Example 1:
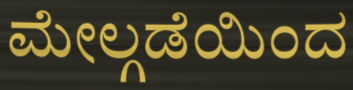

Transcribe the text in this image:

ಮೇಲ್ಗಡೆಯಿಂದ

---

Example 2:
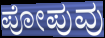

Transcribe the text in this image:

ಪೋಪುವು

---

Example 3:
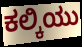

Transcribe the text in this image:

ಕಲ್ಕಿಯು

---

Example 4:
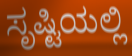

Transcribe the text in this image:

ಸೃಷ್ಟಿಯಲ್ಲಿ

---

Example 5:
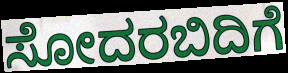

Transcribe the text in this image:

ಸೋದರಬಿದಿಗೆ